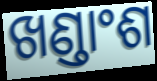
ଖଣ୍ଡାଂଶ